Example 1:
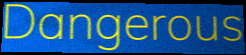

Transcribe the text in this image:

Dangerous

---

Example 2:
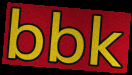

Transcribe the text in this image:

bbk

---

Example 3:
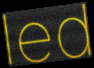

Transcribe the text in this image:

led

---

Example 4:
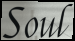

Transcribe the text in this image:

Soul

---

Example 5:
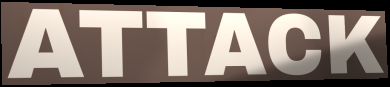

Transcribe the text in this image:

ATTACK